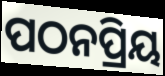
ପଠନପ୍ରିୟ